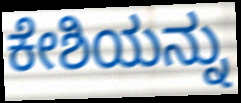
ಕೇಶಿಯನ್ನು